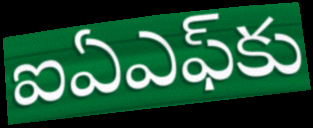
ఐఏఎఫ్‌కు